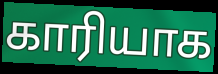
காரியாக